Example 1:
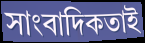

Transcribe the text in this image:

সাংবাদিকতাই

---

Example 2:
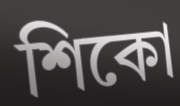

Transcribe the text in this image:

শিকো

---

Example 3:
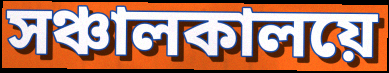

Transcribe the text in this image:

সঞ্চালকালয়ে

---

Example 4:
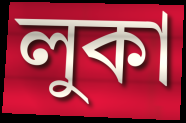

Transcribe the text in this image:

লুকা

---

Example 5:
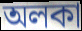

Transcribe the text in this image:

অলকা